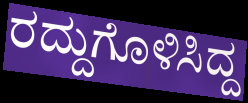
ರದ್ದುಗೊಳಿಸಿದ್ದ